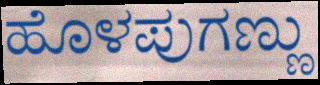
ಹೊಳಪುಗಣ್ಣು